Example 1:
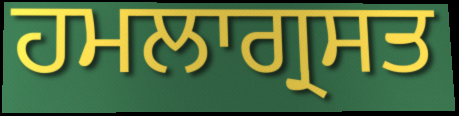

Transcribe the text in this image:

ਹਮਲਾਗ੍ਰਸਤ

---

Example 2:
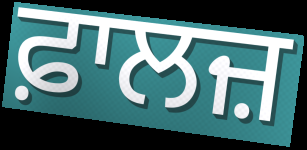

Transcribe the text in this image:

ਫ਼ਾਲਜ਼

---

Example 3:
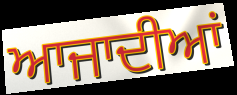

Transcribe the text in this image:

ਆਜਾਦੀਆਂ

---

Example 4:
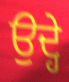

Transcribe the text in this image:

ਉਦ੍ਹੇ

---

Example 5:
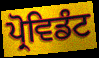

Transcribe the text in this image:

ਪ੍ਰੋਵਿਡੰਟ